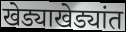
खेड्याखेड्यांत